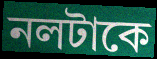
নলটাকে